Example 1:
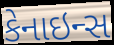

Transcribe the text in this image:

કેનાઇન્સ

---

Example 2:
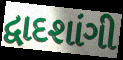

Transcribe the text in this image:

દ્વાદશાંગી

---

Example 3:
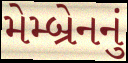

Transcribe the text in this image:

મેમ્બ્રેનનું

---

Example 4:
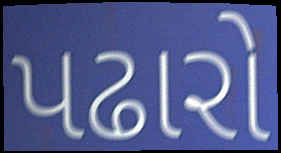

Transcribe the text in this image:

પઢારો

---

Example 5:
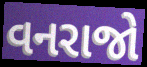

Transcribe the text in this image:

વનરાજો